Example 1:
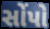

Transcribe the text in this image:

સોંપો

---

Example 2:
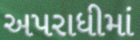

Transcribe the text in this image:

અપરાધીમાં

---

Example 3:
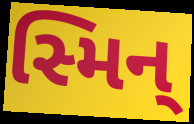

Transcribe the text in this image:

સ્મિન્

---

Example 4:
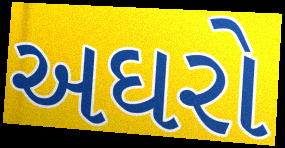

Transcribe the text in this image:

અઘરો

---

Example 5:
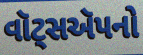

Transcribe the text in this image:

વૉટ્સઍપનો